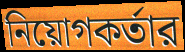
নিয়োগকর্তার